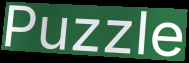
Puzzle